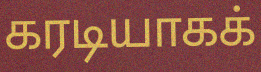
கரடியாகக்